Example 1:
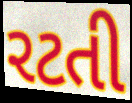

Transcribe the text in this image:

રટતી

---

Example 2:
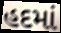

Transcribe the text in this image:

હદમાં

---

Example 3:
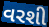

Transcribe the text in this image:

વરશી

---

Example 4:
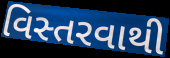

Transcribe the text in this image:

વિસ્તરવાથી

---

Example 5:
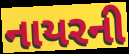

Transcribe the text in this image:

નાયરની